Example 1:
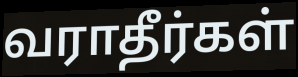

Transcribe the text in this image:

வராதீர்கள்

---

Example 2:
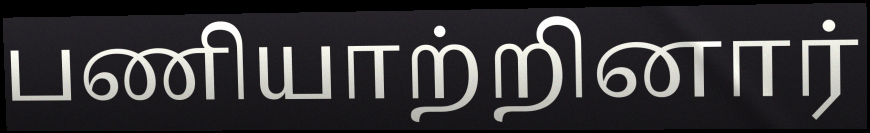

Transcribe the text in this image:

பணியாற்றினார்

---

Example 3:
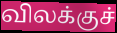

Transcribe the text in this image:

விலக்குச்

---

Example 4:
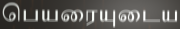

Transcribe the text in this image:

பெயரையுடைய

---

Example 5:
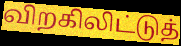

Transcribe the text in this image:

விறகிலிட்டுத்